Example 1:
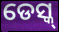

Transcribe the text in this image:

ଡେସ୍କ୍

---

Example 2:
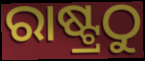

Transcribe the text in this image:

ରାଷ୍ଟ୍ରଠୁ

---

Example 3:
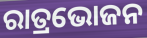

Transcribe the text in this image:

ରାତ୍ରଭୋଜନ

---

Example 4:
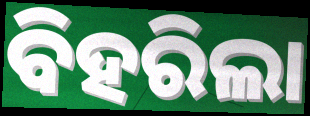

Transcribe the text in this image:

ବିହରିଲା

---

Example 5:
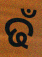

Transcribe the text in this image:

ଢଁ